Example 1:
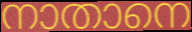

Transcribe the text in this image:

നാതാനെ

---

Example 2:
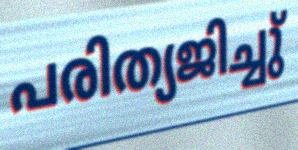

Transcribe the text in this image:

പരിത്യജിച്ചു്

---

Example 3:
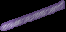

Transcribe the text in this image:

അക്കാലത്താണ്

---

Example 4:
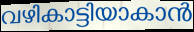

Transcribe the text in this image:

വഴികാട്ടിയാകാൻ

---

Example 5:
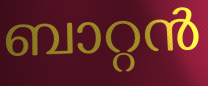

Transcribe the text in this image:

ബാറ്റൻ